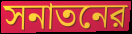
সনাতনের